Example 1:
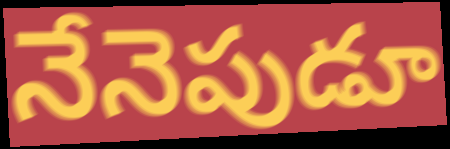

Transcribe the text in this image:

నేనెపుడూ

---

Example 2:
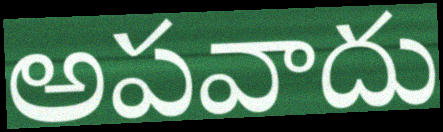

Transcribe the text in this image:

అపవాదు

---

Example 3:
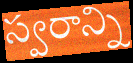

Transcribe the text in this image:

స్వరాన్ని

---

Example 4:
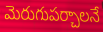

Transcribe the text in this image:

మెరుగుపర్చాలనే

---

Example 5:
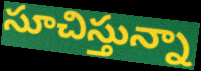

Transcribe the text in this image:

సూచిస్తున్నా